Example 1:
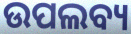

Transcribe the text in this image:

ଉପଲବ୍ୟ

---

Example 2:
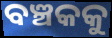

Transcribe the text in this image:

ବଞ୍ଚକକୁ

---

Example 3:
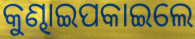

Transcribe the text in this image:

କୁଣ୍ଢାଇପକାଇଲେ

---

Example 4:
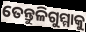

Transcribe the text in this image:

ତେନ୍ତୁଳିଗୁମ୍ମାକୁ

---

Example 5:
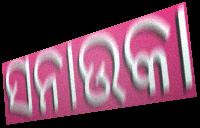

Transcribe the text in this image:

ସନାଉକା